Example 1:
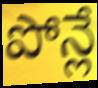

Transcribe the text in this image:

పోన్లే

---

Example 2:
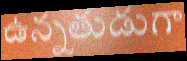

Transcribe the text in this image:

ఉన్నతుడుగా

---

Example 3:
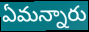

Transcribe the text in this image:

ఏమన్నారు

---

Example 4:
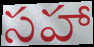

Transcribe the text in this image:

సహా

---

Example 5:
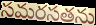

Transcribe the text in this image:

సమరసతను